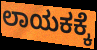
ಲಾಯಕಕ್ಕೆ